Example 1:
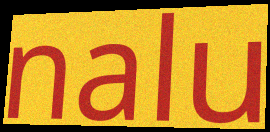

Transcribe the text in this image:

nalu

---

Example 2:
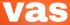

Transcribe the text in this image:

vas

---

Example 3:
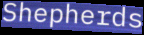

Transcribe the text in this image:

Shepherds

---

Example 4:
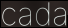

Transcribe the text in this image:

cada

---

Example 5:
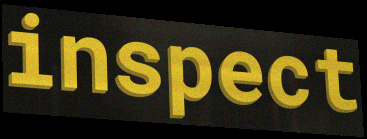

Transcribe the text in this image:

inspect